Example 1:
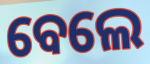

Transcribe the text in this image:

ବେଲେ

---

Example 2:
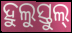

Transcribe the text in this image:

ହୁଲୁସ୍ତୁଲ୍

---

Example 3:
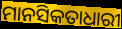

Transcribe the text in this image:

ମାନସିକତାଧାରୀ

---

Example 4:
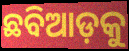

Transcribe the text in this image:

ଛବିଆଡ଼କୁ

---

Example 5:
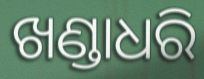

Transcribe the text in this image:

ଖଣ୍ଡାଧରି